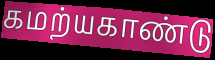
கமற்யகாண்டு